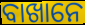
ବାଖାନେ